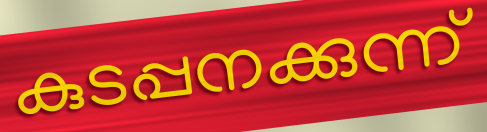
കുടപ്പനക്കുന്ന്